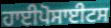
ਹਾਈਪੋਸਾਈਟਸ